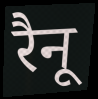
रैनू